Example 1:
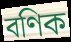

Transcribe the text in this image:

বণিক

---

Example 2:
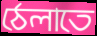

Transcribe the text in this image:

ঠেলাতে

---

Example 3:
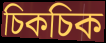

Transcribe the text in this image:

চিকচিক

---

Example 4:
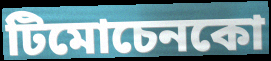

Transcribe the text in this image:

টিমোচেনকো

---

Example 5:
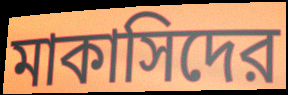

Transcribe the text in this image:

মাকাসিদের